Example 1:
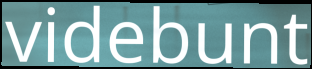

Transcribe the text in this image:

videbunt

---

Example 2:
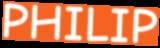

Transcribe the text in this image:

PHILIP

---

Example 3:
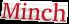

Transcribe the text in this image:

Minch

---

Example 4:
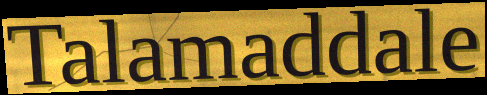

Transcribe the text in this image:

Talamaddale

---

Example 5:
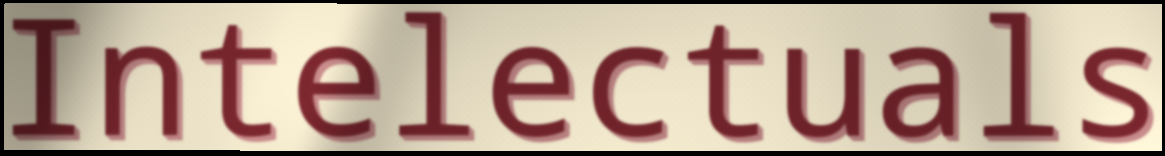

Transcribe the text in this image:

Intelectuals